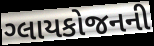
ગ્લાયકોજનની